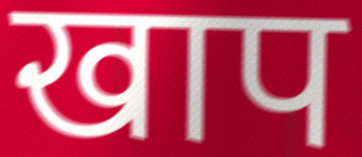
खाप